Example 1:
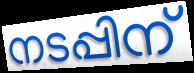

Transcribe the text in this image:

നടപ്പിന്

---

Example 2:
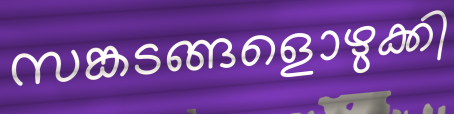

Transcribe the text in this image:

സങ്കടങ്ങളൊഴുക്കി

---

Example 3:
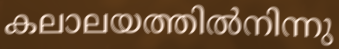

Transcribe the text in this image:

കലാലയത്തിൽനിന്നു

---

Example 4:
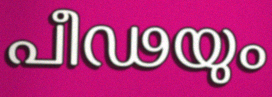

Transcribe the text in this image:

പീഢയും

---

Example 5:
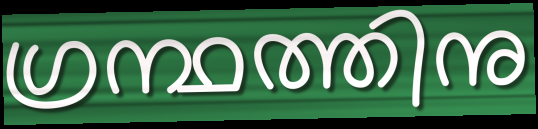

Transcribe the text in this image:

ഗ്രന്ഥത്തിനു